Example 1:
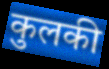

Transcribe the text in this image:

कुलकी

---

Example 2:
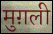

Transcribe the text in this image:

मुग़ली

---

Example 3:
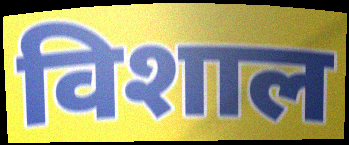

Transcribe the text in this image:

विशाल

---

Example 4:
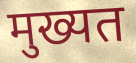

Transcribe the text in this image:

मुख्यत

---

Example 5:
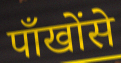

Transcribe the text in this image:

पाँखोंसे